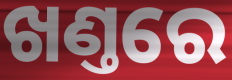
ଖଣ୍ତରେ